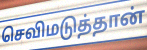
செவிமடுத்தான்